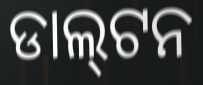
ଡାଲ୍‌ଟନ